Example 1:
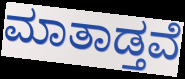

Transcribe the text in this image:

ಮಾತಾಡ್ತವೆ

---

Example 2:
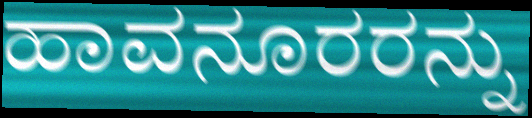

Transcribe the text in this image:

ಹಾವನೂರರನ್ನು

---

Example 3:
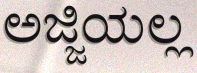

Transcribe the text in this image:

ಅಜ್ಜಿಯಲ್ಲ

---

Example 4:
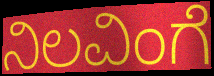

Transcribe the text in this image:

ನಿಲವಿಂಗೆ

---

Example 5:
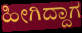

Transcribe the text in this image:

ಹೀಗಿದ್ದಾಗ